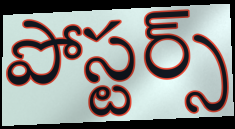
పోస్టర్స్